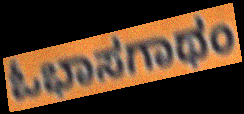
ಓಭಾಸಗಾಥಂ